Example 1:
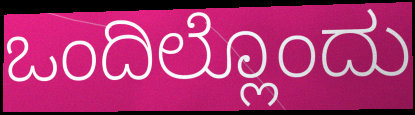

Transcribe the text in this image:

ಒಂದಿಲ್ಲೊಂದು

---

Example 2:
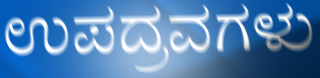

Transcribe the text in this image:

ಉಪದ್ರವಗಳು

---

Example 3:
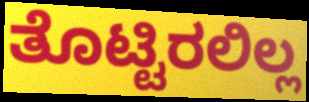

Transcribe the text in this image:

ತೊಟ್ಟಿರಲಿಲ್ಲ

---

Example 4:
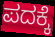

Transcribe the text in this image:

ಪದಕ್ಕೆ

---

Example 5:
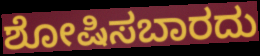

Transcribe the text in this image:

ಶೋಷಿಸಬಾರದು